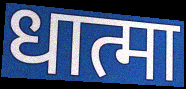
धात्मा